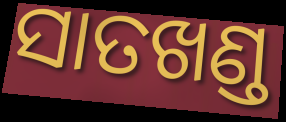
ସାତଖଣ୍ଡ